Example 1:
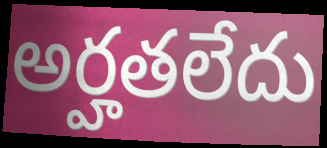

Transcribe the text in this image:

అర్హతలేదు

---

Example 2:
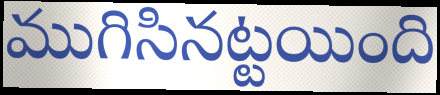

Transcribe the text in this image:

ముగిసినట్టయింది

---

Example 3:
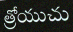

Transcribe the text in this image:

త్రోయుచు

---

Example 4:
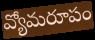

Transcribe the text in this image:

వ్యోమరూపం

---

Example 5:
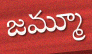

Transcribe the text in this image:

జమ్మూ